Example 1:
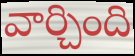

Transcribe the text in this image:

వార్చింది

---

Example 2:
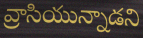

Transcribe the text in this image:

వ్రాసియున్నాడని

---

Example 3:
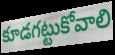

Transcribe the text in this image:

కూడగట్టుకోవాలి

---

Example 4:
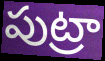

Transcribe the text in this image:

పుట్రా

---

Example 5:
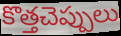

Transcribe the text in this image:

కొత్తచెప్పులు